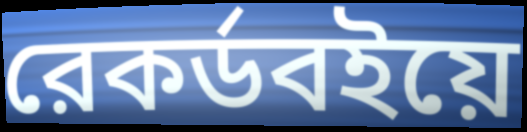
রেকর্ডবইয়ে